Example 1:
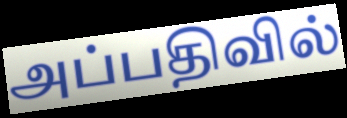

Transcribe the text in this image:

அப்பதிவில்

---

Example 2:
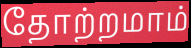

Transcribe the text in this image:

தோற்றமாம்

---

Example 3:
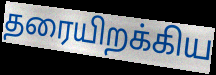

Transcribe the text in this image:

தரையிறக்கிய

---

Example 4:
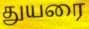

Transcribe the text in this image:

துயரை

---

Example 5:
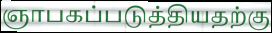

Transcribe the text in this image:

ஞாபகப்படுத்தியதற்கு